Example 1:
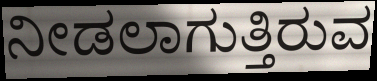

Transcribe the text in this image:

ನೀಡಲಾಗುತ್ತಿರುವ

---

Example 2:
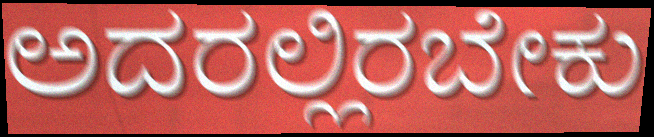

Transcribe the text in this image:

ಅದರಲ್ಲಿರಬೇಕು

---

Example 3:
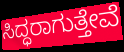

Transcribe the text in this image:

ಸಿದ್ಧರಾಗುತ್ತೇವೆ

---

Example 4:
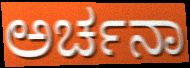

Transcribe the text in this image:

ಅರ್ಚನಾ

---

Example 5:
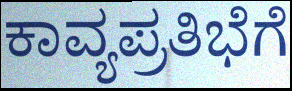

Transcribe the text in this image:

ಕಾವ್ಯಪ್ರತಿಭೆಗೆ